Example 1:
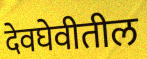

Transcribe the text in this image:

देवघेवीतील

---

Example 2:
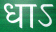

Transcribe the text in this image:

धाऽ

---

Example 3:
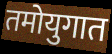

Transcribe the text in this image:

तमोयुगात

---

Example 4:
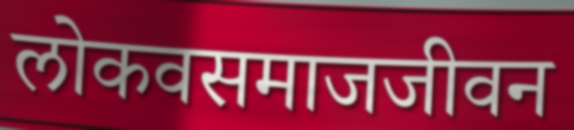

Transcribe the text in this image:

लोकवसमाजजीवन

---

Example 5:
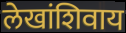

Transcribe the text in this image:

लेखांशिवाय